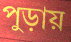
পুড়ায়